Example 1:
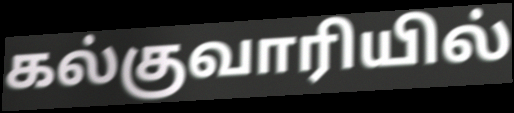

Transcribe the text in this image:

கல்குவாரியில்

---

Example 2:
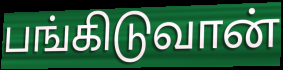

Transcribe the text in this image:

பங்கிடுவான்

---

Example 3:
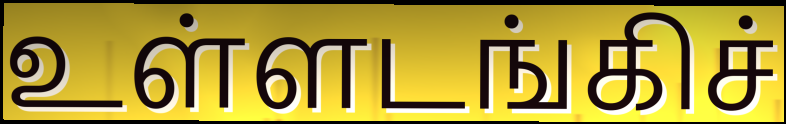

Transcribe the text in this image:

உள்ளடங்கிச்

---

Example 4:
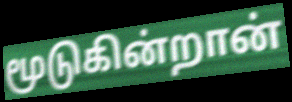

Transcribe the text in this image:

மூடுகின்றான்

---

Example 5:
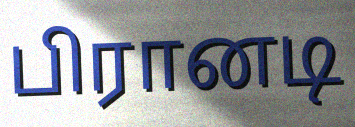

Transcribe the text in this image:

பிரானடி